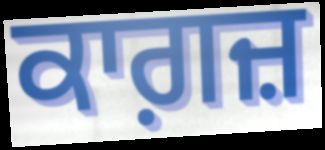
ਕਾਗ਼ਜ਼